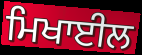
ਮਿਖਾਈਲ